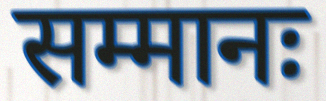
सम्मानः